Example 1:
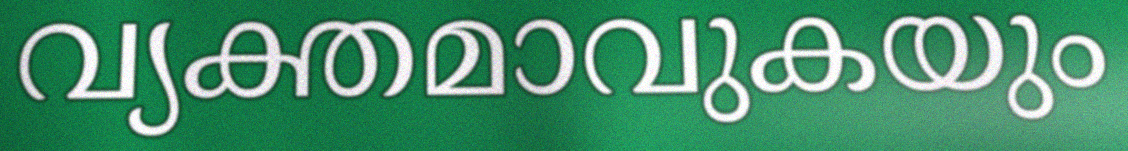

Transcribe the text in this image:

വ്യക്തമാവുകയും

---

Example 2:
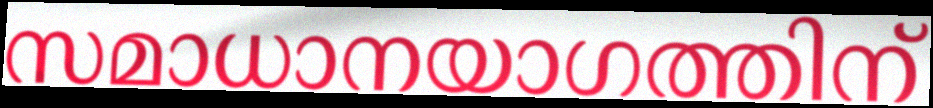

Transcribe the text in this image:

സമാധാനയാഗത്തിന്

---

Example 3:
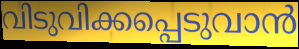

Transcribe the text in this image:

വിടുവിക്കപ്പെടുവാൻ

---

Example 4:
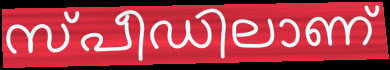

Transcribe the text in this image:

സ്പീഡിലാണ്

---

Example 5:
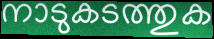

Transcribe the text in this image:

നാടുകടത്തുക